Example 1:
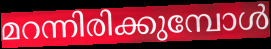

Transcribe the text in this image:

മറന്നിരിക്കുമ്പോൾ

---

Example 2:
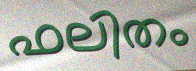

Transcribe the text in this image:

ഫലിതം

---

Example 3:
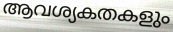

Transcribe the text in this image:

ആവശ്യകതകളും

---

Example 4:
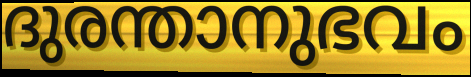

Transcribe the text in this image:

ദുരന്താനുഭവം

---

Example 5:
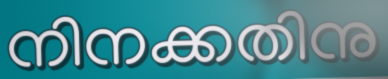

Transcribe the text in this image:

നിനക്കതിനു